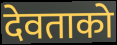
देवताको